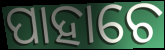
ପାହାଚେ